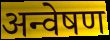
अन्वेषण